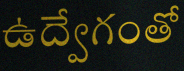
ఉద్వేగంతో